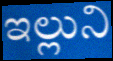
ఇల్లుని